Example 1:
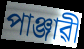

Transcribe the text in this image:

পাঞ্জাৱী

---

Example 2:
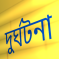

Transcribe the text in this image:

দুৰ্ঘটনা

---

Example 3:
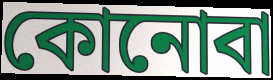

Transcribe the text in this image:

কোনোবা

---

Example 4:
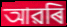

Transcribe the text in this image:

আৱৰি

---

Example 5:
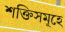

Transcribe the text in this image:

শক্তিসমূহে